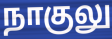
நாகுலு